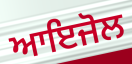
ਆਇਜੋਲ